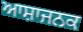
ਆਸ਼ਾਜਨਕ